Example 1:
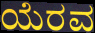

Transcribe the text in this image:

ಯೆರವ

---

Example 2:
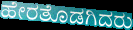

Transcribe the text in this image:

ಹೇರತೊಡಗಿದರು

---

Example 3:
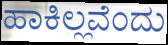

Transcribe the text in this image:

ಹಾಕಿಲ್ಲವೆಂದು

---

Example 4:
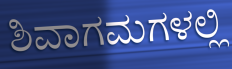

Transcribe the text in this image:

ಶಿವಾಗಮಗಳಲ್ಲಿ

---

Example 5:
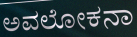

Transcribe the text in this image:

ಅವಲೋಕನಾ